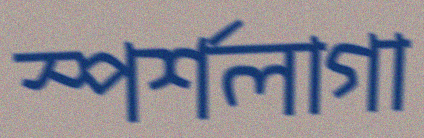
স্পর্শলাগা